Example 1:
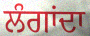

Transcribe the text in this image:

ਲੰਗਾਂਦਾ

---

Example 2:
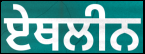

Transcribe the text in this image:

ਏਥਲੀਨ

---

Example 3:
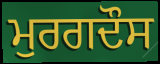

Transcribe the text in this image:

ਮੁਰਗਦੌਸ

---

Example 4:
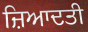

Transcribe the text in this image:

ਜ਼ਿਆਦਤੀ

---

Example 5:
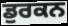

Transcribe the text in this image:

ਡੁਰਕਨ